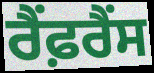
ਰੈਂਫ਼ਰੈਂਸ